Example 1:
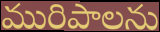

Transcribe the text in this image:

మురిపాలను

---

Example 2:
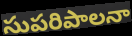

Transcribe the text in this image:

సుపరిపాలనా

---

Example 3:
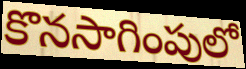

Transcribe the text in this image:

కొనసాగింపులో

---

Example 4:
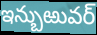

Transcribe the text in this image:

ఇన్బుఱువర్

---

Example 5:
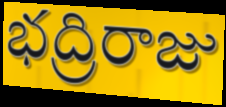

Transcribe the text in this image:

భద్రిరాజు